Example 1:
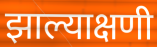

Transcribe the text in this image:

झाल्याक्षणी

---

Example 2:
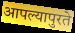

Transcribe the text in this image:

आपल्यापुरते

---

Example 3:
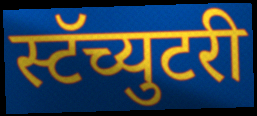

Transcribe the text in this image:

स्टॅच्युटरी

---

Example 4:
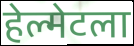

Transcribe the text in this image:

हेल्मेटला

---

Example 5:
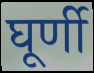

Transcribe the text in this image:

घूर्णी